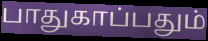
பாதுகாப்பதும்